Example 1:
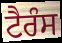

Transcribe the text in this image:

ਟੈਰੰਸ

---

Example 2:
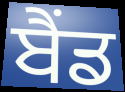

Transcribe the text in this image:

ਬੈਂਡ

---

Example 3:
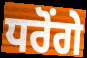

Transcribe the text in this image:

ਧਰੋਂਗੇ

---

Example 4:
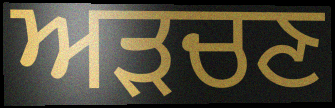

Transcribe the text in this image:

ਅੜਚਣ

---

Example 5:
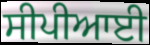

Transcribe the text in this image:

ਸੀਪੀਆਈ